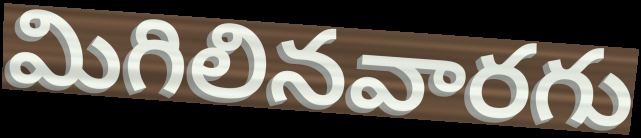
మిగిలినవారగు